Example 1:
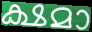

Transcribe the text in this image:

ക്ഷമാ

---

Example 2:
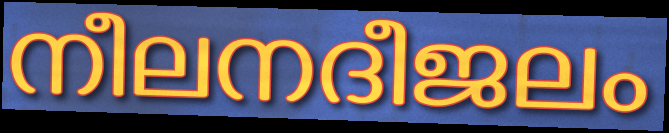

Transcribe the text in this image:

നീലനദീജലം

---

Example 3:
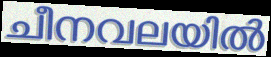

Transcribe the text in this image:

ചീനവലയിൽ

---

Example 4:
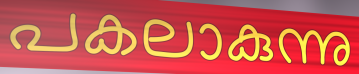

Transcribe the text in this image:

പകലാകുന്നു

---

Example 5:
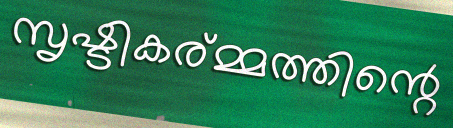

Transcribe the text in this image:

സൃഷ്ടികര്മ്മത്തിന്റെ